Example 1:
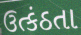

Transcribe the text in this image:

ઉત્કંઠતા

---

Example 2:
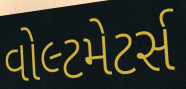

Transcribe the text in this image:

વોલ્ટમેટર્સ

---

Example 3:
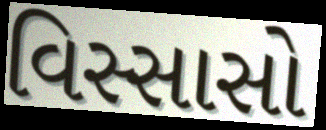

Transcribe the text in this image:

વિસ્સાસો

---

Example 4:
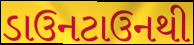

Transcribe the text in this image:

ડાઉનટાઉનથી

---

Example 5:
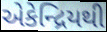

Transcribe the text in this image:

એકેન્દ્રિયથી